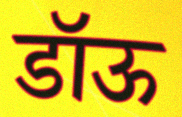
डॉऊ